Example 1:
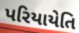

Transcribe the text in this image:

પરિયાયેતિ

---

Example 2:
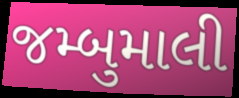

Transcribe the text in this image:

જમ્બુમાલી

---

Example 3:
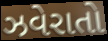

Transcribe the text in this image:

ઝવેરાતો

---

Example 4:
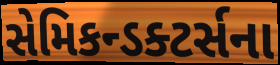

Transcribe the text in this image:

સેમિકન્ડક્ટર્સના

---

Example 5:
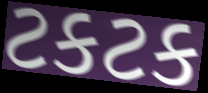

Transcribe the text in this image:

ટકટક